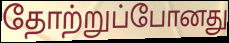
தோற்றுப்போனது